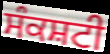
ਸੰਕਸ਼ਟੀ